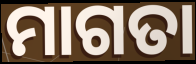
ମାଗତା